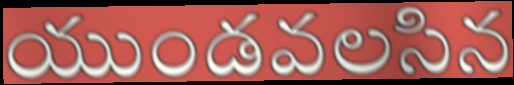
యుండవలసిన